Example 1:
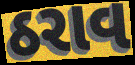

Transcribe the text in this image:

ઠરાવ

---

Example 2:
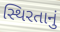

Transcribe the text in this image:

સ્થિરતાનું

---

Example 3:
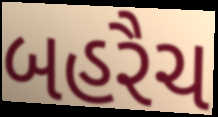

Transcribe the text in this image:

બહરૈચ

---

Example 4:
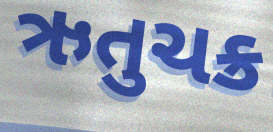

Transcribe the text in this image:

ઋતુચક્ર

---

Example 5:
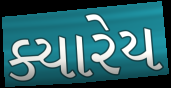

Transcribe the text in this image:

ક્યારેય